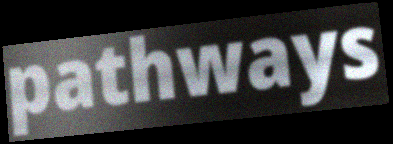
pathways